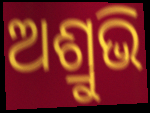
ଅଶ୍ରୁଭି